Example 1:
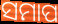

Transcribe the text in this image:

ସମାପ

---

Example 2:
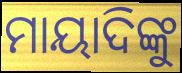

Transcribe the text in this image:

ମାୟାଦିଙ୍କୁ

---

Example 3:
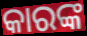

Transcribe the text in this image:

କାରଙ୍କ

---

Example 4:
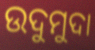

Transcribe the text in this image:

ଉଦୁମୁଦା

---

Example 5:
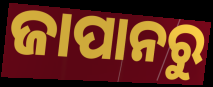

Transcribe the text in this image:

ଜାପାନରୁ